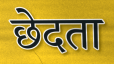
छेदता